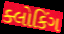
ક્લોકિંગ